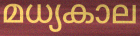
മധ്യകാല